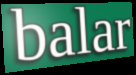
balar